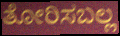
ತೋರಿಸಬಲ್ಲ